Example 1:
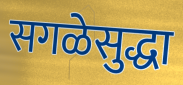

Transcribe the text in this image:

सगळेसुद्धा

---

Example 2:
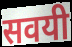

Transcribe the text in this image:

सवयी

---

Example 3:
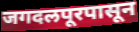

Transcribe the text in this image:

जगदलपूरपासून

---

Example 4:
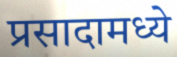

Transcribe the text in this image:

प्रसादामध्ये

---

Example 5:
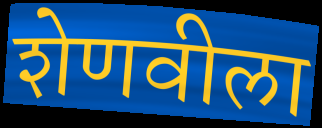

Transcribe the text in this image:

शेणवीला